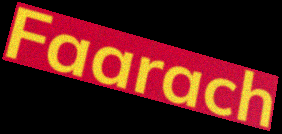
Faarach